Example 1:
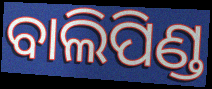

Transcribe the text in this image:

ବାଲିପିଣ୍ଡ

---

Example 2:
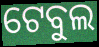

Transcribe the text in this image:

ଟେବୁଲ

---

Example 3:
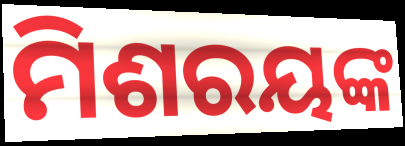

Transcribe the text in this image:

ମିଶରୟଙ୍କ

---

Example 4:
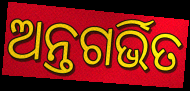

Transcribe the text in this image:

ଅନ୍ତଗର୍ଭିତ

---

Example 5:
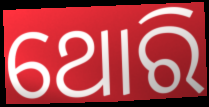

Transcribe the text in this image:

ଥୋରି